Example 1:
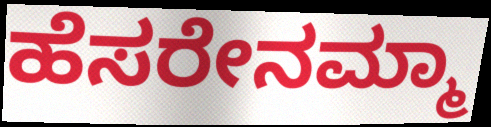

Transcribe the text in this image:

ಹೆಸರೇನಮ್ಮಾ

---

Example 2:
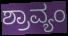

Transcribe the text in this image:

ಶ್ರಾವ್ಯಂ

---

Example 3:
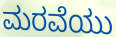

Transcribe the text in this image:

ಮರವೆಯು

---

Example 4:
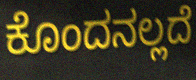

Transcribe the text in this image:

ಕೊಂದನಲ್ಲದೆ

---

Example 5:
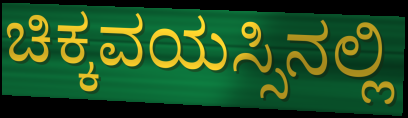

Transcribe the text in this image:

ಚಿಕ್ಕವಯಸ್ಸಿನಲ್ಲಿ